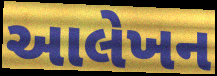
આલેખન